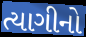
ત્યાગીનો